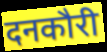
दनकौरी